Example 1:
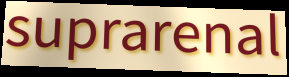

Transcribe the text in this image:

suprarenal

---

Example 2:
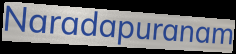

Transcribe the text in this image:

Naradapuranam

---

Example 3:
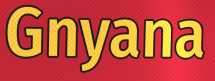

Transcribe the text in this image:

Gnyana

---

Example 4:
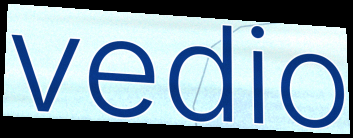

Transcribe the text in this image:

vedio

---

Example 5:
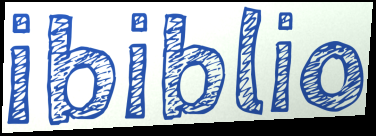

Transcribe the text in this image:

ibiblio